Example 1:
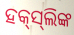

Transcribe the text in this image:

ହକ୍‌ସ୍‌ଲିଙ୍କ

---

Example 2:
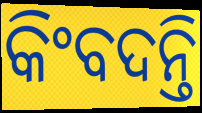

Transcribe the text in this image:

କିଂବଦନ୍ତି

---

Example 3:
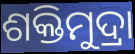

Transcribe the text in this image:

ଶକ୍ତିମୁଦ୍ରା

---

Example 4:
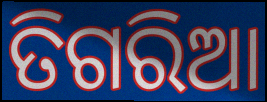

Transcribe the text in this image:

ତିଗରିଆ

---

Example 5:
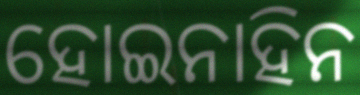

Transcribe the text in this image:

ହୋଇନାହିନ